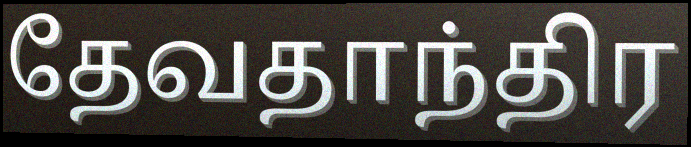
தேவதாந்திர